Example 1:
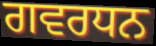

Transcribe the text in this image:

ਗਵਰਧਨ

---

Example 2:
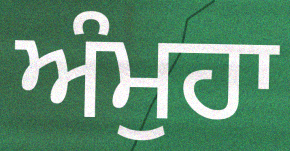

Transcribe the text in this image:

ਅੰਮੁਹਾ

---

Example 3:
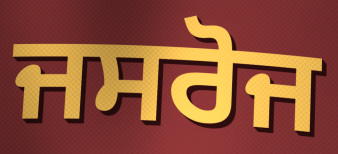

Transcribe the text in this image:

ਜਸਰੋਜ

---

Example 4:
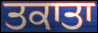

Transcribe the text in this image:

ਤਕਾਤਾ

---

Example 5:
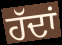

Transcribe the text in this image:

ਹੱਦਾਂ